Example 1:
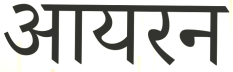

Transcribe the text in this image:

आयरन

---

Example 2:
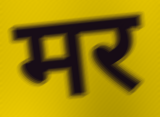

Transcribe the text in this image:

मर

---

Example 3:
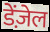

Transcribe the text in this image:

डेंज़ेल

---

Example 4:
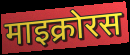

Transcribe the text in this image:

माइक्रोरस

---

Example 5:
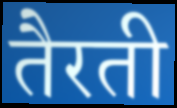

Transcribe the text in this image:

तैरती